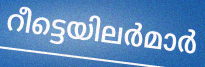
റീട്ടെയിലർമാർ